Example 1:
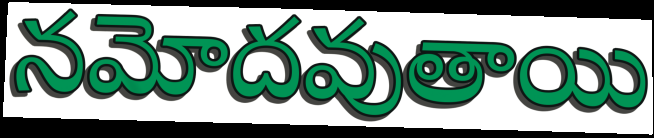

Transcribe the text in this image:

నమోదవుతాయి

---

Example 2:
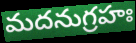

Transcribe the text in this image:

మదనుగ్రహః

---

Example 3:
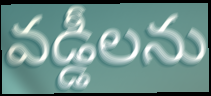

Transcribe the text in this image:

వడ్డీలను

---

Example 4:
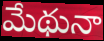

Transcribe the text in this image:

మేథునా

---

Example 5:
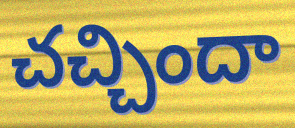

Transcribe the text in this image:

చచ్చిందా